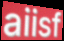
aiisf